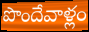
పొందేవాళ్లం